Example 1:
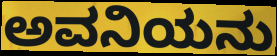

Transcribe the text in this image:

ಅವನಿಯನು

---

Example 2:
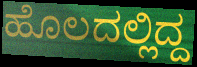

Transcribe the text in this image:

ಹೊಲದಲ್ಲಿದ್ದ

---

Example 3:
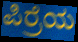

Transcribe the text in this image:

ಪಿರ್ರೆಯ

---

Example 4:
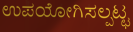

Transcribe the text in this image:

ಉಪಯೋಗಿಸಲ್ಪಟ್ಟ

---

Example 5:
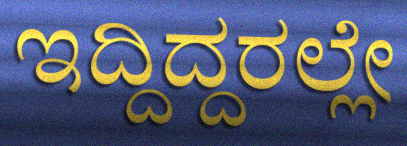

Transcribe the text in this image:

ಇದ್ದಿದ್ದರಲ್ಲೇ